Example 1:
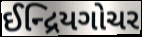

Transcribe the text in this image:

ઈન્દ્રિયગોચર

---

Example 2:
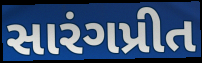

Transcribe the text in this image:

સારંગપ્રીત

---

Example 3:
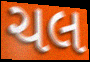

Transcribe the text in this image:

ચલ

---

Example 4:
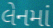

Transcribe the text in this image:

લેનમાં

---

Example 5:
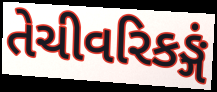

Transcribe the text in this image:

તેચીવરિકઙ્ગં